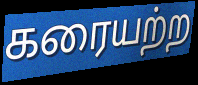
கரையற்ற